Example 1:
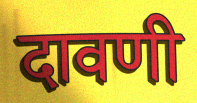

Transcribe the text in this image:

दावणी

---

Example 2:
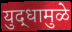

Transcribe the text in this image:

युद्धामुळे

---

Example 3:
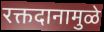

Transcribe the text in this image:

रक्तदानामुळे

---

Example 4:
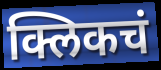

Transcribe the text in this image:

क्लिकचं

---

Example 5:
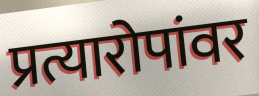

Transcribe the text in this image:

प्रत्यारोपांवर